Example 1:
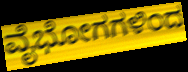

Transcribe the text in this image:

ವೈಭೋಗಗಳಿಂದ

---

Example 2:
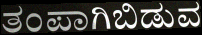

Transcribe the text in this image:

ತಂಪಾಗಿಬಿಡುವ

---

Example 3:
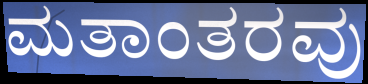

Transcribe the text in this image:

ಮತಾಂತರವು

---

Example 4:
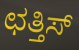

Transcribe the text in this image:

ಛತ್ತಿಸ್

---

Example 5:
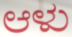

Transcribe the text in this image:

ಆಳು